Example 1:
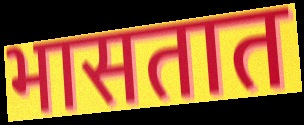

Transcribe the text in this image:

भासतात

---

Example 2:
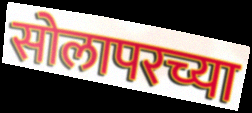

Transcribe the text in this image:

सोलापरच्या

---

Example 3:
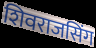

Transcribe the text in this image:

शिवराजसिंग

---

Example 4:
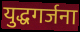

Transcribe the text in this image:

युद्धगर्जना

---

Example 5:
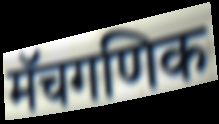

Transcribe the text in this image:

मॅचगणिक